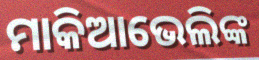
ମାକିଆଭେଲିଙ୍କ